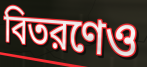
বিতরণেও